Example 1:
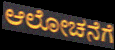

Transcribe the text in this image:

ಆಲೋಚನೆಗೆ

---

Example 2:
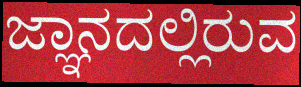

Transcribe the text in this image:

ಜ್ಞಾನದಲ್ಲಿರುವ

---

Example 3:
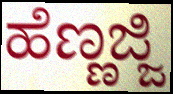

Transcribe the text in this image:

ಹೆಣ್ಣಜ್ಜಿ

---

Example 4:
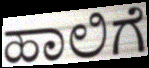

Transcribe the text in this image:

ಹಾಲಿಗೆ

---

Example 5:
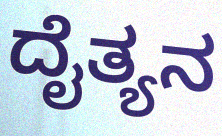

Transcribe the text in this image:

ದೈತ್ಯನ